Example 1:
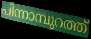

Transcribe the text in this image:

പിന്നാമ്പുറത്ത്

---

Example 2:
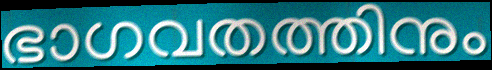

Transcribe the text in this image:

ഭാഗവതത്തിനും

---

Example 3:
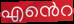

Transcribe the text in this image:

എൻെറ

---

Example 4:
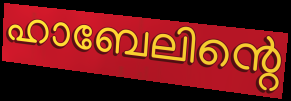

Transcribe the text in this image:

ഹാബേലിന്റെ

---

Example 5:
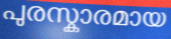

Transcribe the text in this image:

പുരസ്കാരമായ